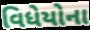
વિધેયોના